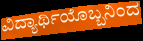
ವಿದ್ಯಾರ್ಥಿಯೊಬ್ಬನಿಂದ